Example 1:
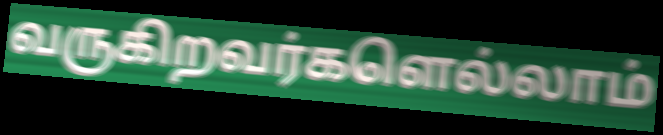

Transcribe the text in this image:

வருகிறவர்களெல்லாம்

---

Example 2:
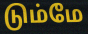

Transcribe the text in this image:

டும்மே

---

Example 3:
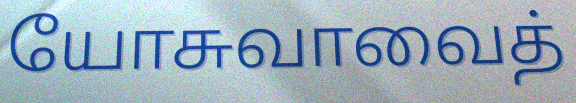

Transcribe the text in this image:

யோசுவாவைத்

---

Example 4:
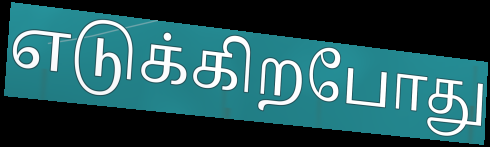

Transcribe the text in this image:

எடுக்கிறபோது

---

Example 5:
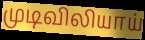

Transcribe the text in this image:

முடிவிலியாய்